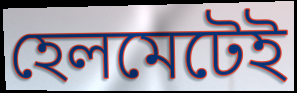
হেলমেটেই